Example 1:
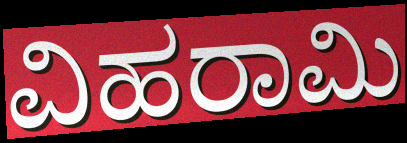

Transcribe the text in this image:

ವಿಹರಾಮಿ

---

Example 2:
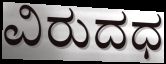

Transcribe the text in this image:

ವಿರುದಧ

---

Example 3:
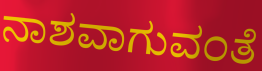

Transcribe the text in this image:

ನಾಶವಾಗುವಂತೆ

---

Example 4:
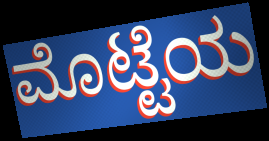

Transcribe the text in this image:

ಮೊಟ್ಟೆಯ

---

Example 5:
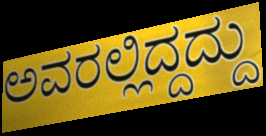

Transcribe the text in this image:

ಅವರಲ್ಲಿದ್ದದ್ದು